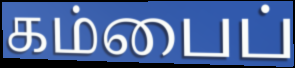
கம்பைப்